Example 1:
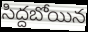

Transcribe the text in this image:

సిద్దబోయిన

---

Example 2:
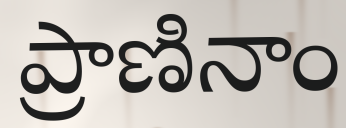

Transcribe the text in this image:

ప్రాణినాం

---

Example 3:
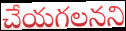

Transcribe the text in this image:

చేయగలనని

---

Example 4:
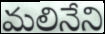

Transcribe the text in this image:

మలినేని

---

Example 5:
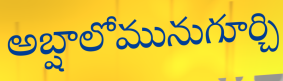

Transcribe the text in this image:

అబ్షాలోమునుగూర్చి